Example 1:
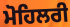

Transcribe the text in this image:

ਮੋਹਿਲਰੀ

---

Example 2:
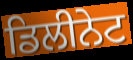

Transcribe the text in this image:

ਡਿਲੀਨੇਟ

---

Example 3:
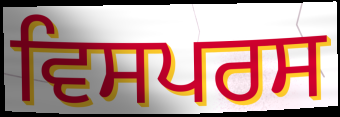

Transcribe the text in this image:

ਵਿਸਪਰਸ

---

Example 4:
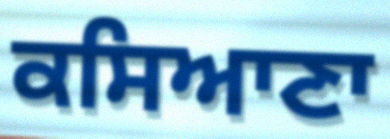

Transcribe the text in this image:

ਕਸਿਆਣਾ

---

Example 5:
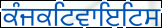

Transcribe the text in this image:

ਕੰਜਕਟਿਵਾਇਟਿਸ